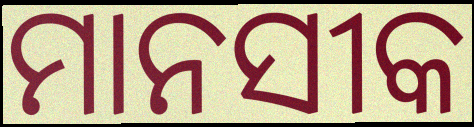
ମାନସୀକ